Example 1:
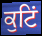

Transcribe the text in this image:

ਕੁਟਿਂ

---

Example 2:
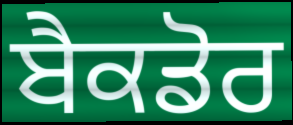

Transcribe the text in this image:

ਬੈਕਡੋਰ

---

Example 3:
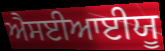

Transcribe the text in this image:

ਐਸਈਆਈਯੂ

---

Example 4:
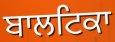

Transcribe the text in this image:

ਬਾਲਟਿਕਾ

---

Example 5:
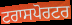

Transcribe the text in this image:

ਟਰਾਸਪੋਰਟਰ